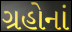
ગ્રહોનાં